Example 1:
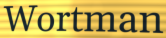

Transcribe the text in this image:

Wortman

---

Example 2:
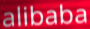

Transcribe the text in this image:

alibaba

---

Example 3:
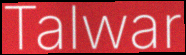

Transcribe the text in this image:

Talwar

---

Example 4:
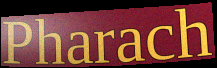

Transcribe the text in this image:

Pharach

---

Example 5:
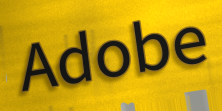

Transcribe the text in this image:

Adobe